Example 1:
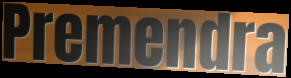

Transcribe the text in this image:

Premendra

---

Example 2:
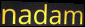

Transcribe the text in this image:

nadam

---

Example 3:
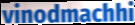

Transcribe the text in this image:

vinodmachhi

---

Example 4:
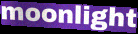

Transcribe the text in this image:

moonlight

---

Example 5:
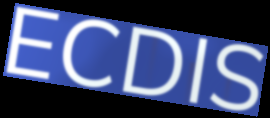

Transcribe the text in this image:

ECDIS